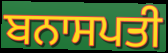
ਬਨਾਸਪਤੀ